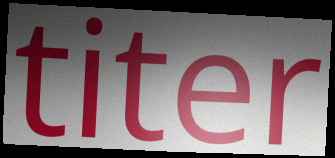
titer